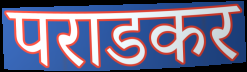
पराडकर